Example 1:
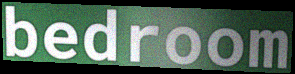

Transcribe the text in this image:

bedroom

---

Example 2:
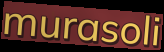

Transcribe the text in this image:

murasoli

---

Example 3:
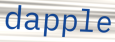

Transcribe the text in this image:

dapple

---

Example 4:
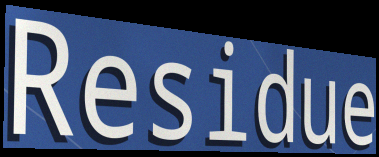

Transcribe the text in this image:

Residue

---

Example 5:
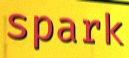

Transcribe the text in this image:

spark